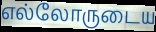
எல்லோருடைய